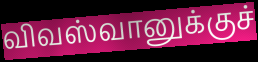
விவஸ்வானுக்குச்